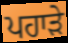
ਪਹਾੜੇ